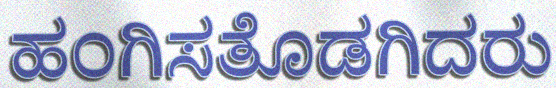
ಹಂಗಿಸತೊಡಗಿದರು